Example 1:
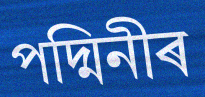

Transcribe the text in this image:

পদ্মিনীৰ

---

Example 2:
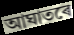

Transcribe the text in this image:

আঘাতৰে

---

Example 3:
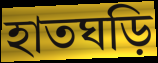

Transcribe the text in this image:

হাতঘড়ি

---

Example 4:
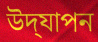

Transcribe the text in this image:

উদ্‌যাপন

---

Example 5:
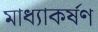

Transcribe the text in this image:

মাধ্যাকৰ্ষণ